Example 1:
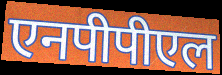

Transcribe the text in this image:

एनपीपीएल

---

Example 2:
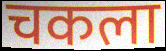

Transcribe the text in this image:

चकला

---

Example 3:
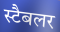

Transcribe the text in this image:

स्टैबलर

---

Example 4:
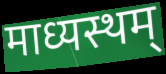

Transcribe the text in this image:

माध्यस्थम्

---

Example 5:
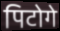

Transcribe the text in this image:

पिटोगे